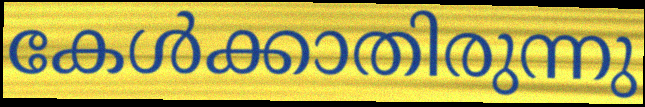
കേൾക്കാതിരുന്നു